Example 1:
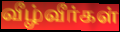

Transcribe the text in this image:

வீழ்வீர்கள்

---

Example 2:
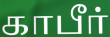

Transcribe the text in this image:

காபீர்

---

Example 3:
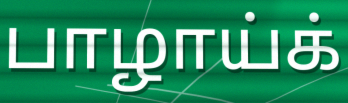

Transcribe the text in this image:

பாழாய்க்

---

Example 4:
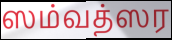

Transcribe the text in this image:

ஸம்வத்ஸர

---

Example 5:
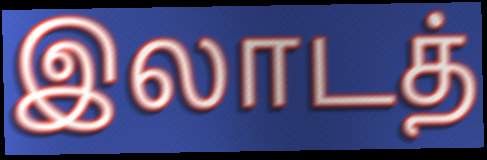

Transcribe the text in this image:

இலாடத்